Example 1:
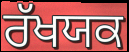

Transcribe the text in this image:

ਰੱਖਯਕ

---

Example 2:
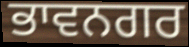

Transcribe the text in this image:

ਭਾਵਨਗਰ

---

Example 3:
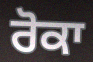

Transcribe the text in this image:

ਰੋਕਾ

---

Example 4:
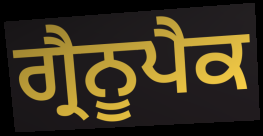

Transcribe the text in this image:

ਗ੍ਰੈਨੂਪੈਕ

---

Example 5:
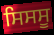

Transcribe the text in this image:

ਸਿਸਸੂ